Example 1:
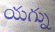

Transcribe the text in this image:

యగ్ను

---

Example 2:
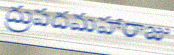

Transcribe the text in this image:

ద్రుపదమహారాజు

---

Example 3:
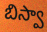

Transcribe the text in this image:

బిస్వా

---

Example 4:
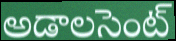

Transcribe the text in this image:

అడాలసెంట్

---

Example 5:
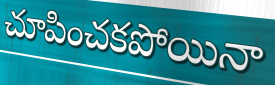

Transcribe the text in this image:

చూపించకపోయినా